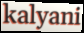
kalyani